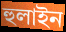
হুলাইন